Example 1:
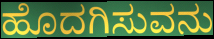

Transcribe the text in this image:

ಹೊದಗಿಸುವನು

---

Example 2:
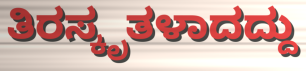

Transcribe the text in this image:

ತಿರಸ್ಕೃತಳಾದದ್ದು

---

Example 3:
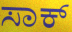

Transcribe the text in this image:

ಸಾಕ್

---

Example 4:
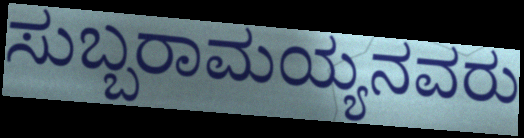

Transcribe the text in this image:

ಸುಬ್ಬರಾಮಯ್ಯನವರು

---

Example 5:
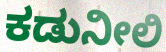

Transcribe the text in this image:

ಕಡುನೀಲಿ